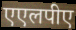
एएलपीए